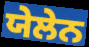
ਯੇਲੇਨ